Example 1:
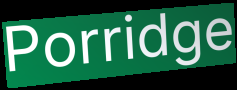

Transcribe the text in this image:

Porridge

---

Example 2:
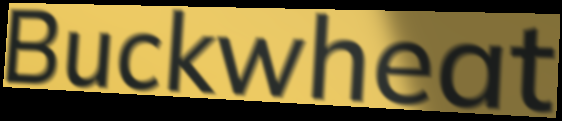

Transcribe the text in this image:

Buckwheat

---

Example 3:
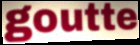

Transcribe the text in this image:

goutte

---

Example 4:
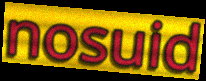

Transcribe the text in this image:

nosuid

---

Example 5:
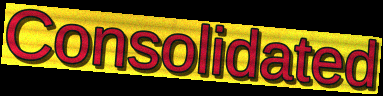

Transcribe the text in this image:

Consolidated